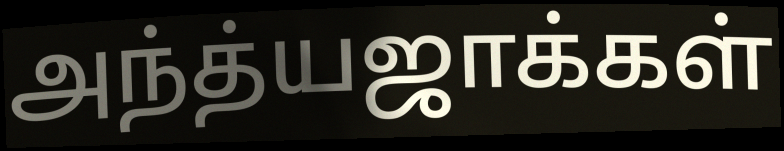
அந்த்யஜாக்கள்